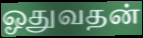
ஓதுவதன்